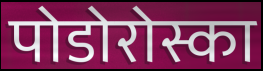
पोडोरोस्का